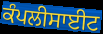
ਕੰਪਲੀਸਾਈਟ